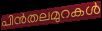
പിൻതലമുറകൾ